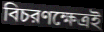
বিচরণক্ষেত্রই